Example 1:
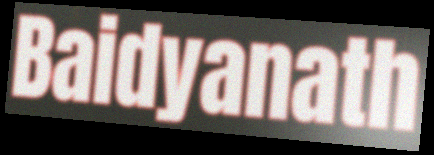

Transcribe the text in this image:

Baidyanath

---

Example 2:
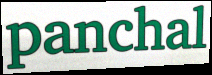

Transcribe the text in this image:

panchal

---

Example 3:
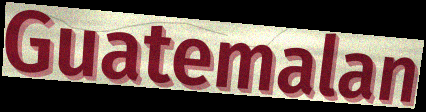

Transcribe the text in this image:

Guatemalan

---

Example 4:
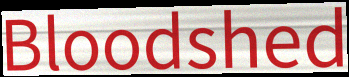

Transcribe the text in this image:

Bloodshed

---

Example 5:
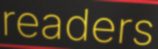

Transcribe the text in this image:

readers